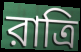
রাত্রি